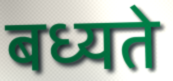
बध्यते